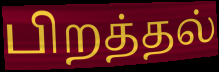
பிறத்தல்